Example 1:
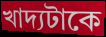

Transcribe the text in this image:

খাদ্যটাকে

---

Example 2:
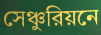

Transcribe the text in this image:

সেঞ্চুরিয়নে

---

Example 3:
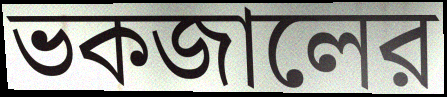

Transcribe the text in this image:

ভকজালের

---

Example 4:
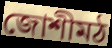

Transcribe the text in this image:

জোশীমঠ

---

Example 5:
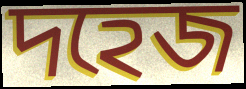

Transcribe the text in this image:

দহেজ